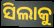
ସିଲାକୁ